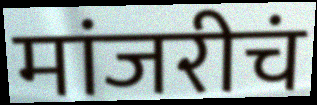
मांजरीचं